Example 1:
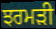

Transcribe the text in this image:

ਝਰਮੜੀ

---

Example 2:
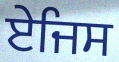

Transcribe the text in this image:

ਏਜਿਸ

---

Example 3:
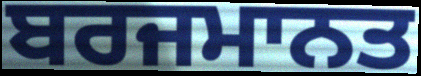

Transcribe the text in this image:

ਬਰਜਮਾਨਤ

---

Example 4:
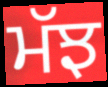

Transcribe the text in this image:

ਮੱਝ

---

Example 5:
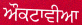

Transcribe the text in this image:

ਔਕਟਾਵੀਆ